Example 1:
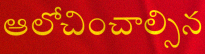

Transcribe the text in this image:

ఆలోచించాల్సిన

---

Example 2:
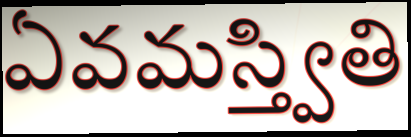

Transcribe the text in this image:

ఏవమస్త్వితి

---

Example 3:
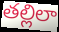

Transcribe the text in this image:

తల్లిలా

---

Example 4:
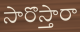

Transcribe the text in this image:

సారొస్తారా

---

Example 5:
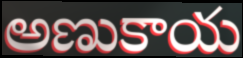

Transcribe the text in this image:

అణుకాయ